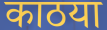
काठया